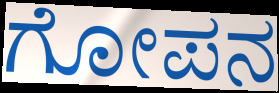
ಗೋಪನ